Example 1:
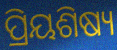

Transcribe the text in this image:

ପ୍ରିୟଶିଷ୍ୟ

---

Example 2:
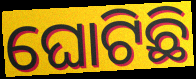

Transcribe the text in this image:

ଘୋଟିଛି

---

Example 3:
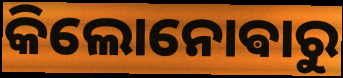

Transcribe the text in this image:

କିଲୋନୋଵାରୁ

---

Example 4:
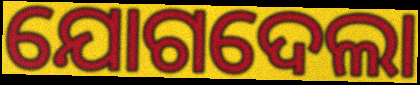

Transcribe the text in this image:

ଯୋଗଦେଲା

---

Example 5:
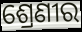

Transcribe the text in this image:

ଶ୍ରେଣୀର